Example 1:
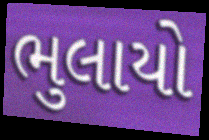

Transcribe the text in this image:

ભુલાયો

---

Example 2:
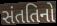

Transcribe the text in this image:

સંતતિનો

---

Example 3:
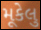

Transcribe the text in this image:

મૂકેલુ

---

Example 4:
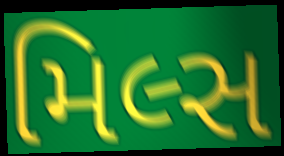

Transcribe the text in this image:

મિલ્સ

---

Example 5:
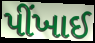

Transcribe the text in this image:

પીંખાઈ